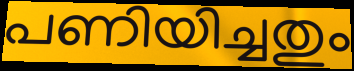
പണിയിച്ചതും